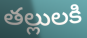
తల్లులకి